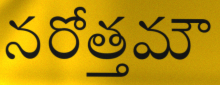
నరోత్తమౌ